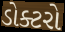
ડોક્ટરો